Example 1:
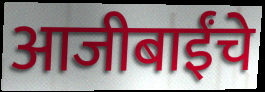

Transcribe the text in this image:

आजीबाईंचे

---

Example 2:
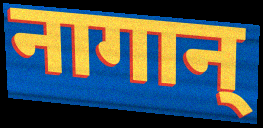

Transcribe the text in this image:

नागान्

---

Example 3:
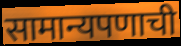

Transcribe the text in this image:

सामान्यपणाची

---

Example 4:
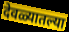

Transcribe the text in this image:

देवळ्यातल्या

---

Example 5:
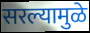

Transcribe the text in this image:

सरल्यामुळे